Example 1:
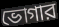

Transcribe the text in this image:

ভোগার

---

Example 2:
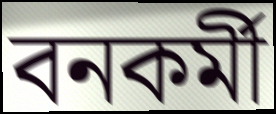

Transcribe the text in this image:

বনকর্মী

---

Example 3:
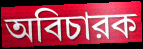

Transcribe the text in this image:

অবিচারক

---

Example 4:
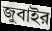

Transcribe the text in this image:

জুবাইর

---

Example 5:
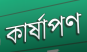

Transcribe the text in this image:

কার্ষাপণ